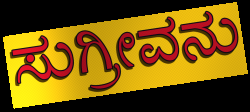
ಸುಗ್ರೀವನು